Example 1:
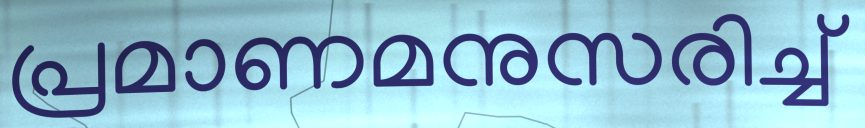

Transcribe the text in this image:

പ്രമാണമനുസരിച്ച്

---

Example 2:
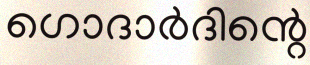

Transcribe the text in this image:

ഗൊദാർദിന്റെ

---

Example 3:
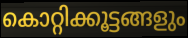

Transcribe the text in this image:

കൊറ്റിക്കൂട്ടങ്ങളും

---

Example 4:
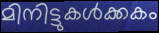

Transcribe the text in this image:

മിനിട്ടുകൾക്കകം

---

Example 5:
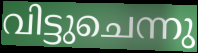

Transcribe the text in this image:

വിട്ടുചെന്നു